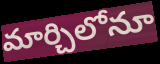
మార్చిలోనూ